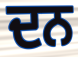
ਦਨ